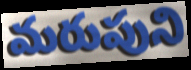
మరుపుని